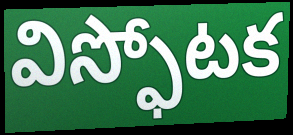
విస్ఫోటక